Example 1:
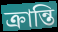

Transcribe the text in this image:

ক্ৰান্তি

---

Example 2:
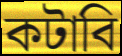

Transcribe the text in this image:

কটাবি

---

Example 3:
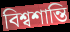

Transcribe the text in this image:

বিশ্বশান্তি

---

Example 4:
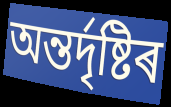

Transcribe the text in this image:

অন্তৰ্দৃষ্টিৰ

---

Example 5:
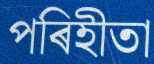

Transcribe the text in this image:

পৰিহীতা